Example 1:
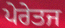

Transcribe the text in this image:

ਪੇਰੇਤਜ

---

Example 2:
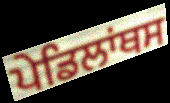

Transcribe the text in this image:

ਪੇਡਿਲਾਂਥਸ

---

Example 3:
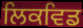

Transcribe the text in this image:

ਲਿਕਵਿਡ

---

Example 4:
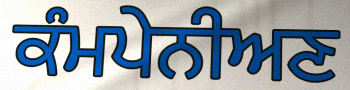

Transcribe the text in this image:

ਕੰਮਪੇਨੀਅਣ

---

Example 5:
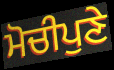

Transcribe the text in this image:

ਮੋਚੀਪੁਣੇ